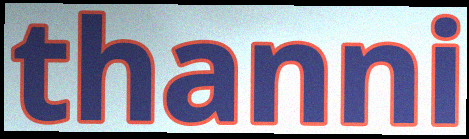
thanni